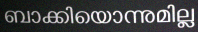
ബാക്കിയൊന്നുമില്ല